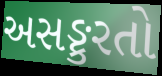
અસઙ્કરતો